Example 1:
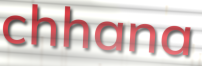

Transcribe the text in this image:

chhana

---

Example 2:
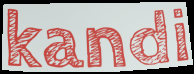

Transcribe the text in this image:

kandi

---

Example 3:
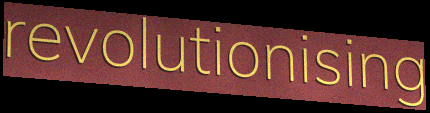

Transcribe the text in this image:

revolutionising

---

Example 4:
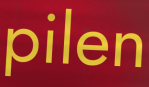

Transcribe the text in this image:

pilen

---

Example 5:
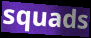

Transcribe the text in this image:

squads